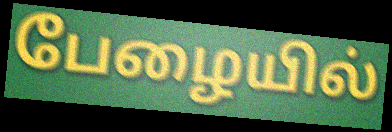
பேழையில்